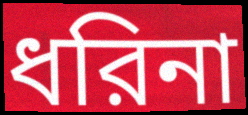
ধরিনা